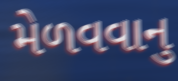
મેળવવાનુ